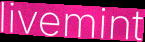
livemint